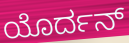
ಯೊರ್ದನ್